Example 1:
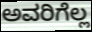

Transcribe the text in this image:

ಅವರಿಗೆಲ್ಲ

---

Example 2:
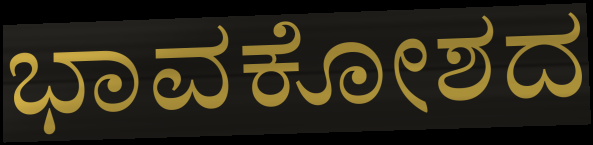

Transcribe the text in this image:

ಭಾವಕೋಶದ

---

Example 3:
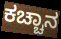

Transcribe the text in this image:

ಕಚ್ಚಾನ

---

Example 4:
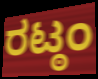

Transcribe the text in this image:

ರಟ್ಠಂ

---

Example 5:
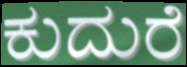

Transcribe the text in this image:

ಕುದುರೆ